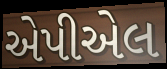
એપીએલ